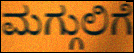
ಮಗ್ಗುಲಿಗೆ